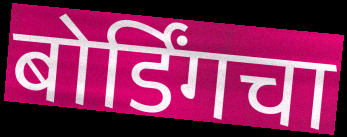
बोर्डिंगचा